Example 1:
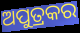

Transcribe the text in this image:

ଅପୁତ୍ରକର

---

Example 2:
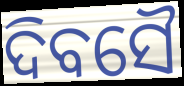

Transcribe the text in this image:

ଦିବସୈ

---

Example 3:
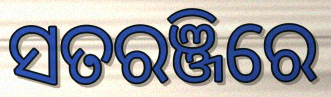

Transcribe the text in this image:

ସତରଞ୍ଜିରେ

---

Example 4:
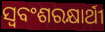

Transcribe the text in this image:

ସ୍ବବଂଶରକ୍ଷାର୍ଥୀ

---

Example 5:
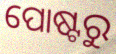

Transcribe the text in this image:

ପୋଷ୍ଟରୁ